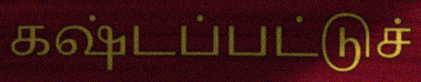
கஷ்டப்பட்டுச்